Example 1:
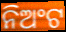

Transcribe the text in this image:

ନିଅଂଟ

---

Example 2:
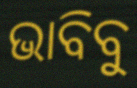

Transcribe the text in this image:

ଭାବିବୁ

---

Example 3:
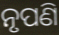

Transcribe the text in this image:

ନୃପଣି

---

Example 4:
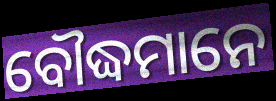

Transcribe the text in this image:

ବୌଦ୍ଧମାନେ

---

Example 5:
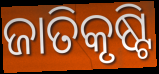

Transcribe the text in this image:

ଜାତିକୃଷ୍ଟି